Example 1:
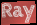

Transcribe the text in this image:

Ray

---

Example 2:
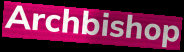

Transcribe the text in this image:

Archbishop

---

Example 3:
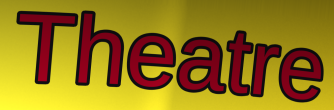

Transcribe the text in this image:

Theatre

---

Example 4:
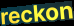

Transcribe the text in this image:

reckon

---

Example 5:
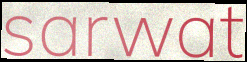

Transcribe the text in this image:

sarwat